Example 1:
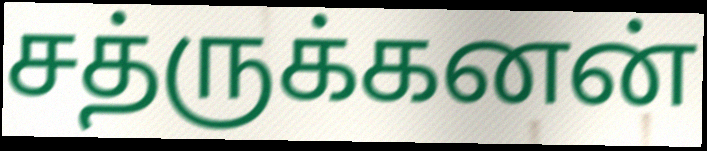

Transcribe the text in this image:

சத்ருக்கனன்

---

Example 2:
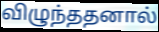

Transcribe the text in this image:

விழுந்ததனால்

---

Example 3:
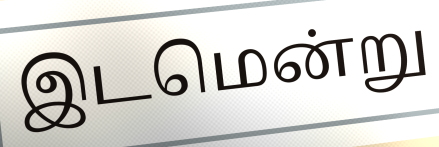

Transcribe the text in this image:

இடமென்று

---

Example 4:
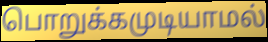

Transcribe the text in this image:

பொறுக்கமுடியாமல்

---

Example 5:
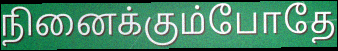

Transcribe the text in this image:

நினைக்கும்போதே